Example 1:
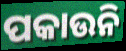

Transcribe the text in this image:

ପକାଉନି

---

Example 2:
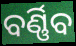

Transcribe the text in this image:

ବର୍ଣ୍ଣିବ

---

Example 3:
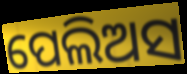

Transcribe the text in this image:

ପେଲିଅସ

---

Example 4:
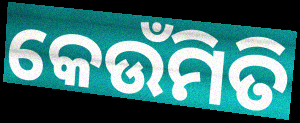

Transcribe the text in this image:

କେଉଁମିତି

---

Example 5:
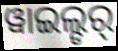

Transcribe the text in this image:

ୱାଇଲ୍ଡର୍